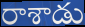
రాశాడు